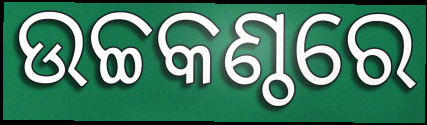
ଉଚ୍ଚକଣ୍ଠରେ